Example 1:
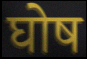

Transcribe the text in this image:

घोष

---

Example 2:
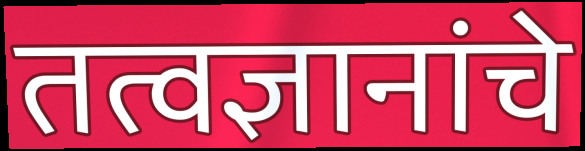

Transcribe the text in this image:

तत्वज्ञानांचे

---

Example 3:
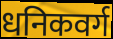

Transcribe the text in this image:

धनिकवर्ग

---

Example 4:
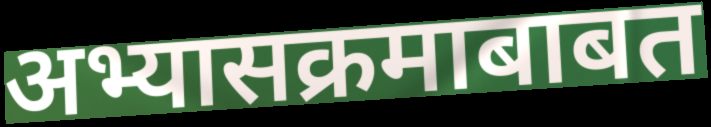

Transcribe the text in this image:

अभ्यासक्रमाबाबत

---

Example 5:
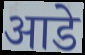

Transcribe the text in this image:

आडे